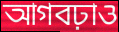
আগবঢ়াও